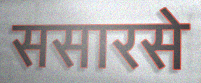
ससारसे